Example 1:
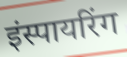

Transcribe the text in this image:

इंस्पायरिंग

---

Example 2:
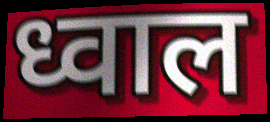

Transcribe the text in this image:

ध्वाल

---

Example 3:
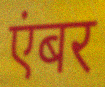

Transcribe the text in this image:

एंबर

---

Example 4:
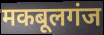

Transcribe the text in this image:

मकबूलगंज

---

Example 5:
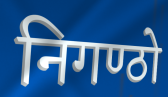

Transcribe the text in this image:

निगण्ठो